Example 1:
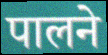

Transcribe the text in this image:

पालने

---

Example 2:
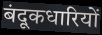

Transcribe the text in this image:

बंदूकधारियों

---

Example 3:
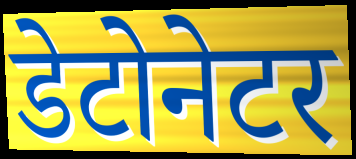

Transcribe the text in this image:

डेटोनेटर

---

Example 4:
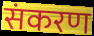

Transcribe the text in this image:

संकरण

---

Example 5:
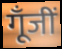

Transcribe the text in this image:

गूँजीं